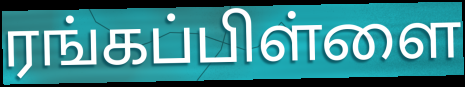
ரங்கப்பிள்ளை